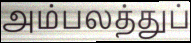
அம்பலத்துப்